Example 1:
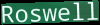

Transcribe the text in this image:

Roswell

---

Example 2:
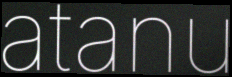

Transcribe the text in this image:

atanu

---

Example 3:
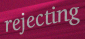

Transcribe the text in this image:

rejecting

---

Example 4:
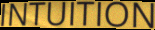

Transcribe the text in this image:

INTUITION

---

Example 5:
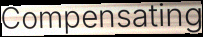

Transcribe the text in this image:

Compensating